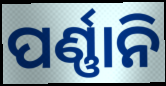
ପର୍ଣ୍ଣାନି